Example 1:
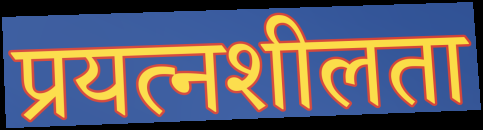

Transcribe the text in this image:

प्रयत्नशीलता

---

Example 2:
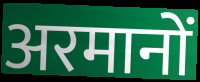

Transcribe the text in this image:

अरमानों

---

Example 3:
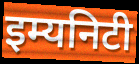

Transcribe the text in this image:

इम्यनिटी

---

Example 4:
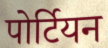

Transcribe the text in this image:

पोर्टियन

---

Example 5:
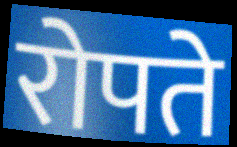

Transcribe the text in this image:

रोपते